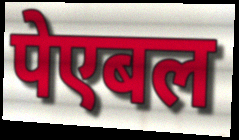
पेएबल